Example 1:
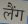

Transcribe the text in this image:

लैंग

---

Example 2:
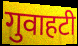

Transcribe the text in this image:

गुवाहटी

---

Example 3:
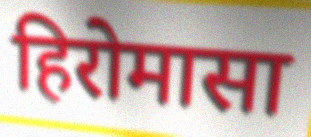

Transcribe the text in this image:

हिरोमासा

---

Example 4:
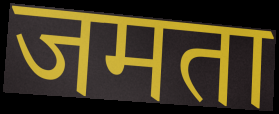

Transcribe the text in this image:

जमता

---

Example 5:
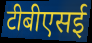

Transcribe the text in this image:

टीबीएसई